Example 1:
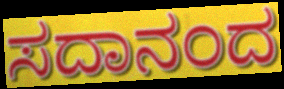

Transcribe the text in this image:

ಸದಾನಂದ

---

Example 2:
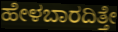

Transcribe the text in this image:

ಹೇಳಬಾರದಿತ್ತೇ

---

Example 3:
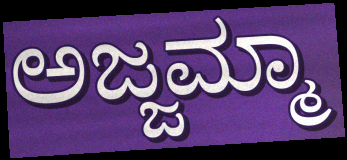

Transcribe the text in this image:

ಅಜ್ಜಮ್ಮಾ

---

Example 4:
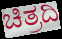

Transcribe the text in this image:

ಚಿತ್ರದಿ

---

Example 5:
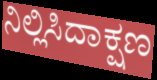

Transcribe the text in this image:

ನಿಲ್ಲಿಸಿದಾಕ್ಷಣ